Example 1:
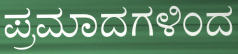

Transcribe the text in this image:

ಪ್ರಮಾದಗಳಿಂದ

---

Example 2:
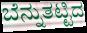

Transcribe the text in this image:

ಬೆನ್ನುತಟ್ಟಿದ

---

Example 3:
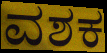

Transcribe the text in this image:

ವಶಕ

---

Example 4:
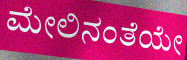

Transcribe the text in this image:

ಮೇಲಿನಂತೆಯೇ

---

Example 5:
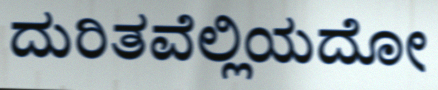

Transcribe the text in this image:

ದುರಿತವೆಲ್ಲಿಯದೋ